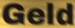
Geld